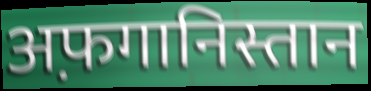
अ़फगानिस्तान